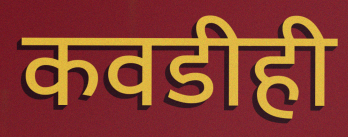
कवडीही